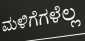
ಮಳಿಗೆಗಳೆಲ್ಲ